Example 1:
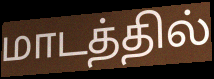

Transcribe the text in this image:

மாடத்தில்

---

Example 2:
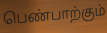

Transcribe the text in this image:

பெண்பாற்கும்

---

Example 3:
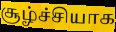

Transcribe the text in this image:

சூழ்ச்சியாக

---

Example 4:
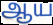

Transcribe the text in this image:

ஆய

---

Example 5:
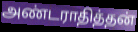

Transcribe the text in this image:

அண்டராதித்தன்